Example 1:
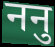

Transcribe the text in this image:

ननु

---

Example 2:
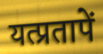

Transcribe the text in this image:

यत्प्रतापें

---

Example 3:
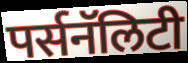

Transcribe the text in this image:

पर्सनॅलिटी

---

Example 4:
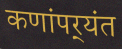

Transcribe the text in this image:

कणांपर्यंत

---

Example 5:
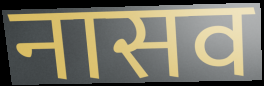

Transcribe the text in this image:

नासव